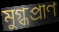
মুগ্ধপ্রাণ